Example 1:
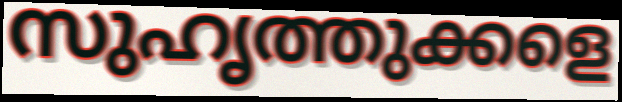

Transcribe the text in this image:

സുഹൃത്തുക്കളെ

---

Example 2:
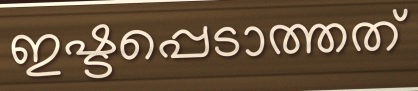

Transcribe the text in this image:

ഇഷ്ടപ്പെടാത്തത്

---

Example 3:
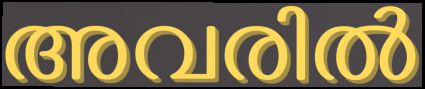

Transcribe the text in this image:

അവരിൽ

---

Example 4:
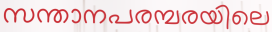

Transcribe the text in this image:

സന്താനപരമ്പരയിലെ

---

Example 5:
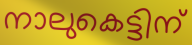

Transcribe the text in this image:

നാലുകെട്ടിന്